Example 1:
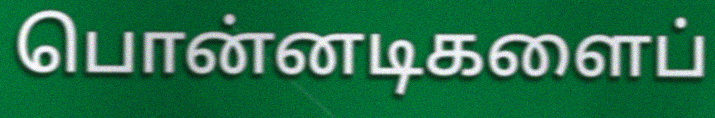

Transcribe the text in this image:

பொன்னடிகளைப்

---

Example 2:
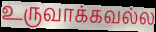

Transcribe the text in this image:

உருவாக்கவல்ல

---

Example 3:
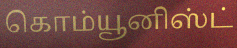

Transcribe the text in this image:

கொம்யூனிஸ்ட்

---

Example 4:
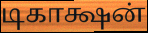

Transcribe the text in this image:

டிகாக்ஷன்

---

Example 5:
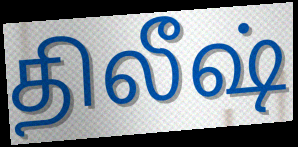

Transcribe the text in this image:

திலீஷ்